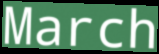
March